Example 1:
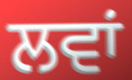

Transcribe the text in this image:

ਲਵਾਂ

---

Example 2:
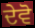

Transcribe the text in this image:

ਦੇਵੋ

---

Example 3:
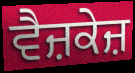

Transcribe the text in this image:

ਵੈਜ਼ਕੇਜ਼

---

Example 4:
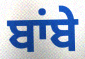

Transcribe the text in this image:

ਬਾਂਬੇ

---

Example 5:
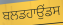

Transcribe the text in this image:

ਬਲਡਹਾਉਂਡਸ